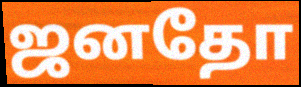
ஜனதோ